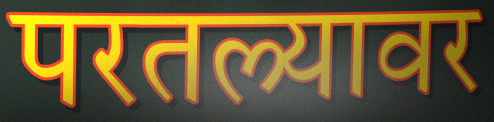
परतल्यावर